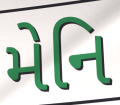
મેનિ